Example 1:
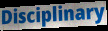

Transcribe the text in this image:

Disciplinary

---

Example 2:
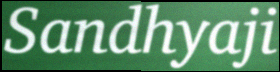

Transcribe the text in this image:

Sandhyaji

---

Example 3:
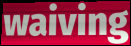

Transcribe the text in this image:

waiving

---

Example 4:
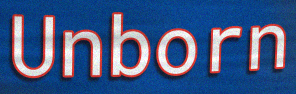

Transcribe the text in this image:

Unborn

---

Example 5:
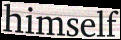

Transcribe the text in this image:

himself